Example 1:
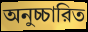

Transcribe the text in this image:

অনুচ্চারিত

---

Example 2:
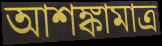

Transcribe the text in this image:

আশঙ্কামাত্র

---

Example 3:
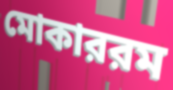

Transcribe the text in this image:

মোকাররম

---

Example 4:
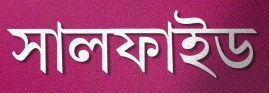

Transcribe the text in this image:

সালফাইড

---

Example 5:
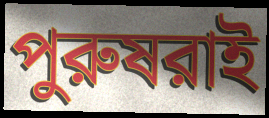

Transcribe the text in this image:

পুরুষরাই